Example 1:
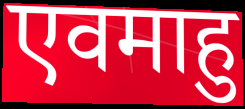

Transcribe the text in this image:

एवमाहु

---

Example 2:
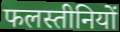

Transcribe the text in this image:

फलस्तीनियों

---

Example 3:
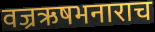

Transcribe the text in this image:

वज्रऋषभनाराच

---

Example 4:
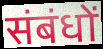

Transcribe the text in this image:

संबंधों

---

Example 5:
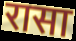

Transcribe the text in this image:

रासा